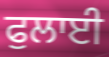
ਫੁਲਾਈ